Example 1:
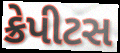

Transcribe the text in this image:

ક્રેપીટસ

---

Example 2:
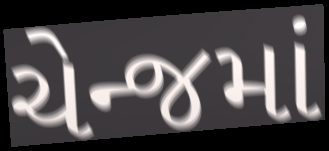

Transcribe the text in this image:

ચેન્જમાં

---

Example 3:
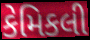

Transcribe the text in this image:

કેમિકલી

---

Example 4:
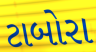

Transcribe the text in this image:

ટાબોરા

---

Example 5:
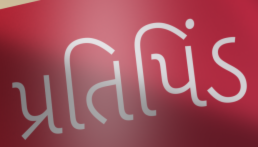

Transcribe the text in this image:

પ્રતિપિંડ